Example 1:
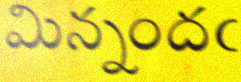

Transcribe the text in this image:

మిన్నందఁ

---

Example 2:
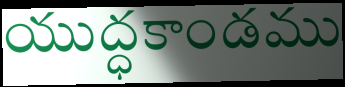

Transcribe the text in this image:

యుద్ధకాండము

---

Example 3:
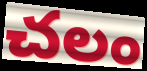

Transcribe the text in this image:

చలం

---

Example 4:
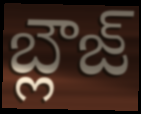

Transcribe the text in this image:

బ్లౌజ్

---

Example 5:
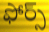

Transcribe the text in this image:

ఫోర్స్